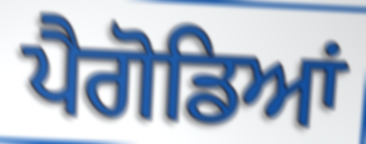
ਪੈਗੋਡਿਆਂ